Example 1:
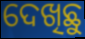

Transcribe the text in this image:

ଦେଖିଛୁ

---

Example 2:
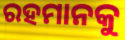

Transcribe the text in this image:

ରହମାନକୁ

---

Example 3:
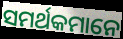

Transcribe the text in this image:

ସମର୍ଥକମାନେ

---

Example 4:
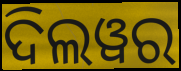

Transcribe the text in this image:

ଦିଲୱର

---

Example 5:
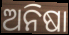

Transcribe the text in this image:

ଅନିଷା